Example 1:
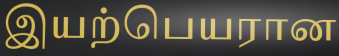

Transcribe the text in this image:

இயற்பெயரான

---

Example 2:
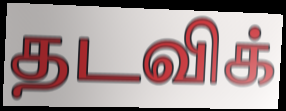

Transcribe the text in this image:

தடவிக்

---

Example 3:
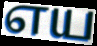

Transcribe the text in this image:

எய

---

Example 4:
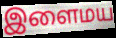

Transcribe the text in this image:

இளைமய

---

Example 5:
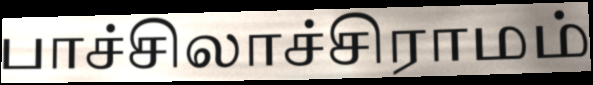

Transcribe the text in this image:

பாச்சிலாச்சிராமம்